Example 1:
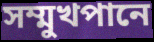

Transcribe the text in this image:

সম্মুখপানে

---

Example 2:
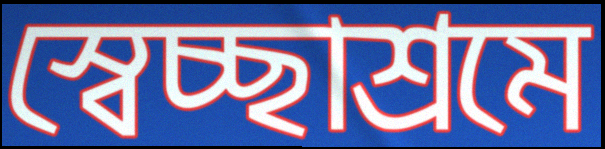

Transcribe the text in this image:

স্বেচ্ছাশ্রমে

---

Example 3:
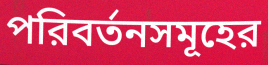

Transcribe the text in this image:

পরিবর্তনসমূহের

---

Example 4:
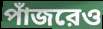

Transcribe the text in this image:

পাঁজরেও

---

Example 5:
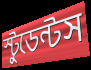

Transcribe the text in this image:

স্টুডেন্টস